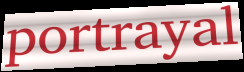
portrayal